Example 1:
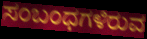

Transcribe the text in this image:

ಸಂಬಂಧಗಳಿರುವ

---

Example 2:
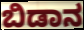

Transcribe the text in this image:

ಬಿಡಾನ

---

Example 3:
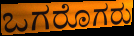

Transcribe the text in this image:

ಒಗರೊಗರು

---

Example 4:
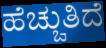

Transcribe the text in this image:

ಹೆಚ್ಚುತಿದೆ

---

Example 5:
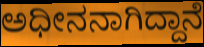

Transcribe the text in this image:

ಅಧೀನನಾಗಿದ್ದಾನೆ